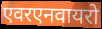
एवरएनवायरो